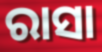
ରାସା